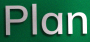
Plan